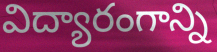
విద్యారంగాన్ని